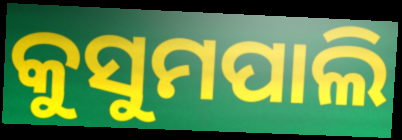
କୁସୁମପାଲି